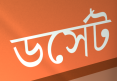
ডর্সেট